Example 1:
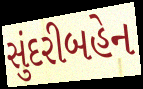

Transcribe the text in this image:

સુંદરીબહેન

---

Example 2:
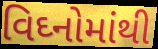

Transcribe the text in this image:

વિઘ્નોમાંથી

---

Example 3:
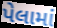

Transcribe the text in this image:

પેલામાં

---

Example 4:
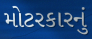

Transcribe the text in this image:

મોટરકારનું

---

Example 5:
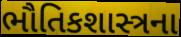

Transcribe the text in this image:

ભૌતિકશાસ્ત્રના